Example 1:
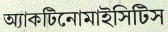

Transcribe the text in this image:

অ্যাকটিনোমাইসিটিস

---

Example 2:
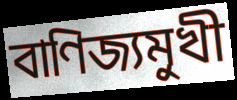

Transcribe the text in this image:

বাণিজ্যমুখী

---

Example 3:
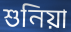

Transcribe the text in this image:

শুনিয়া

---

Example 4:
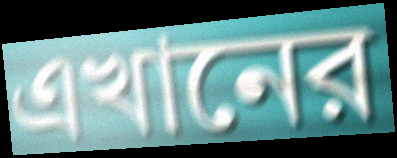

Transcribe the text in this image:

এখানের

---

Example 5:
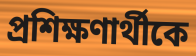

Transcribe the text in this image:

প্রশিক্ষণার্থীকে